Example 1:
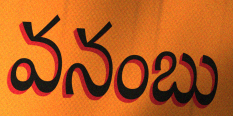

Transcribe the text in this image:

వనంబు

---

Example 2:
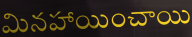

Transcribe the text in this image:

మినహాయించాయి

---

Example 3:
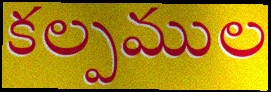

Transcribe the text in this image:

కల్పముల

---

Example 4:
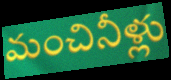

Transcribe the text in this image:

మంచినీళ్లు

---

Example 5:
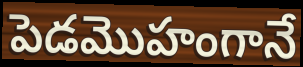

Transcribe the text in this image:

పెడమొహంగానే